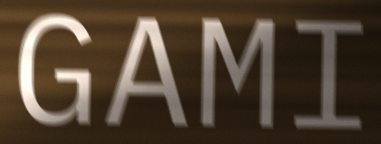
GAMI